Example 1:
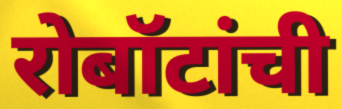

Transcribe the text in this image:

रोबॉटांची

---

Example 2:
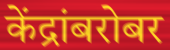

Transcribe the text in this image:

केंद्रांबरोबर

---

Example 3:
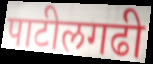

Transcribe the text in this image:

पाटीलगढी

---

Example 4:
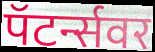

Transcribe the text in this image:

पॅटर्न्सवर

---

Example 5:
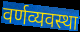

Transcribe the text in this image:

वर्णव्यवस्था